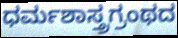
ಧರ್ಮಶಾಸ್ತ್ರಗ್ರಂಥದ